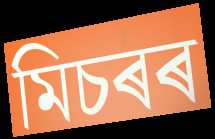
মিচৰৰ